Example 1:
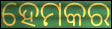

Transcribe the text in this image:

ହେମକର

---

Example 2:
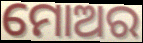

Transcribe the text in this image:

ମୋଅର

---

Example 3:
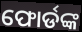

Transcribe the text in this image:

ଫୋର୍ଡଙ୍କ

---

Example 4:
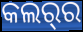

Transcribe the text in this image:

କଲର୍‌ର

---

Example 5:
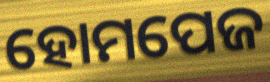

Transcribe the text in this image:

ହୋମପେଜ